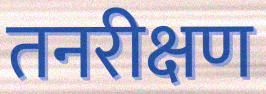
तनरीक्षण